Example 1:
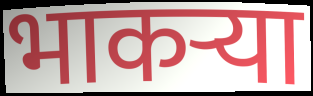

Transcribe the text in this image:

भाकर्‍या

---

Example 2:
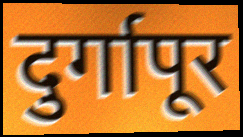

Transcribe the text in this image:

दुर्गापूर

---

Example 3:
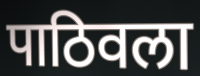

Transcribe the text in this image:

पाठिवला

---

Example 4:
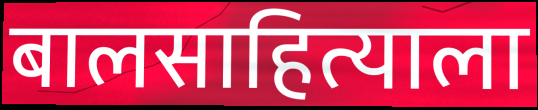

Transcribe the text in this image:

बालसाहित्याला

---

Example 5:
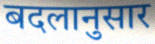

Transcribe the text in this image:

बदलानुसार